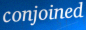
conjoined